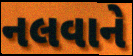
નલવાને